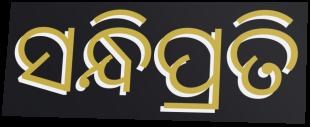
ସନ୍ଧିପ୍ରତି